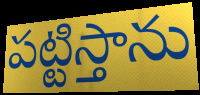
పట్టిస్తాను